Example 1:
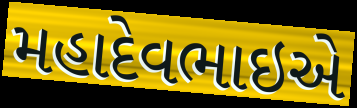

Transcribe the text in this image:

મહાદેવભાઇએ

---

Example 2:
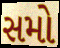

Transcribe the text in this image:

સમો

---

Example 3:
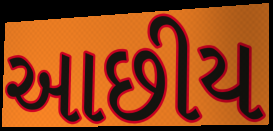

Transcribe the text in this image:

આછીય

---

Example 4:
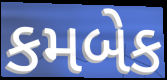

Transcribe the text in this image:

કમબેક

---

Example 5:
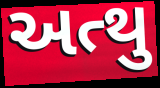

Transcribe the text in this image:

અત્થુ